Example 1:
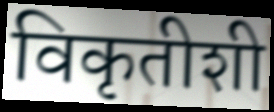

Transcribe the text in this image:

विकृतीशी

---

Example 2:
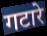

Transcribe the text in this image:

गटारे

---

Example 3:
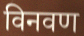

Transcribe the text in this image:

विनवण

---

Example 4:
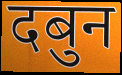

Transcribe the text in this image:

दबुन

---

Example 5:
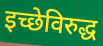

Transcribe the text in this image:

इच्छेविरुद्ध